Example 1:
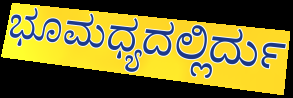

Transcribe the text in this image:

ಭೂಮಧ್ಯದಲ್ಲಿರ್ದು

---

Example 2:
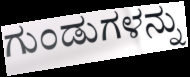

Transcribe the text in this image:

ಗುಂಡುಗಳನ್ನು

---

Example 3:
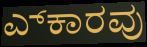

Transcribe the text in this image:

ಎ್‍ಕಾರವು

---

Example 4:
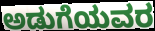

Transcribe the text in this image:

ಅಡುಗೆಯವರ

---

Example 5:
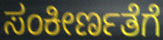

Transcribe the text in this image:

ಸಂಕೀರ್ಣತೆಗೆ